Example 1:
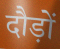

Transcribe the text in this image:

दौड़ों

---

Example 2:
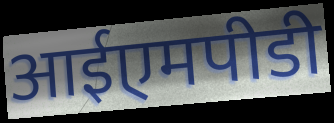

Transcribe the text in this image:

आईएमपीडी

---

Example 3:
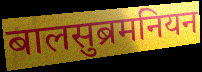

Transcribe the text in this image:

बालसुब्रमनियन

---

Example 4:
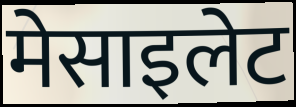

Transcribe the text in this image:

मेसाइलेट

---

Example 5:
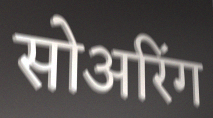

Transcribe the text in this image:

सोअरिंग